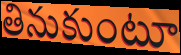
తినుకుంటూ